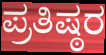
ಪ್ರತಿಷ್ಠರ